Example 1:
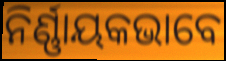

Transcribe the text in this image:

ନିର୍ଣ୍ଣାୟକଭାବେ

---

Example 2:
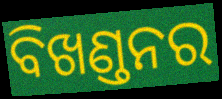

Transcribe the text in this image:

ବିଖଣ୍ଡନର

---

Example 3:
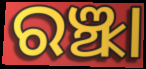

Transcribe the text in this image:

ରଞ୍ଝା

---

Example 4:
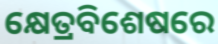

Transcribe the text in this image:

କ୍ଷେତ୍ରବିଶେଷରେ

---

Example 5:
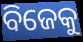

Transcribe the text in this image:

ବିଜେକୁ